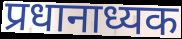
प्रधानाध्यक